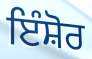
ਇੰਸ਼ੋਰ